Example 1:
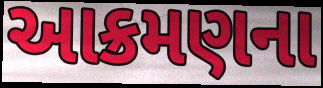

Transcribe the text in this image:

આક્રમણના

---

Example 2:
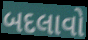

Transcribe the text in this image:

બદલાવો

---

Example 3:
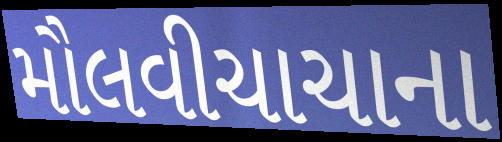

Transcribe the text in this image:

મૌલવીચાચાના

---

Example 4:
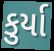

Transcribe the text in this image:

કુર્યા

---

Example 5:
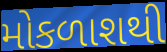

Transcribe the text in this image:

મોકળાશથી